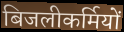
बिजलीकर्मियों